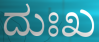
ದುಃಖ